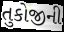
તુકોજીની